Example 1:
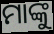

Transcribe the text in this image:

ମାଙ୍କୁ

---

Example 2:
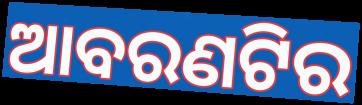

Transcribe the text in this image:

ଆବରଣଟିର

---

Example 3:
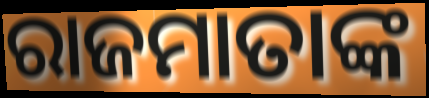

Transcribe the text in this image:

ରାଜମାତାଙ୍କ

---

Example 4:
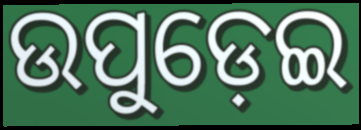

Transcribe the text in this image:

ଉପୁଡ଼େଇ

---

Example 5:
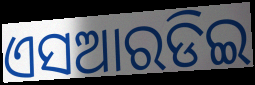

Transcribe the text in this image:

ଏସଆରଡିଇ